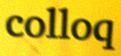
colloq